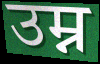
उम्न